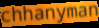
chhanyman